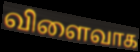
விளைவாக